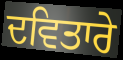
ਦਵਿਤਾਰੇ